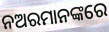
ନଅରମାନଙ୍କରେ